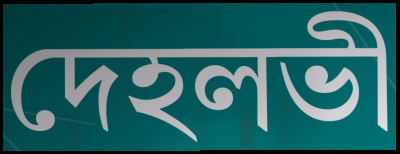
দেহলভী